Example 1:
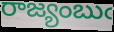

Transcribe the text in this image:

రాజ్యంబుఁ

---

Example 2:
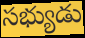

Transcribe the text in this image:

సభ్యుడు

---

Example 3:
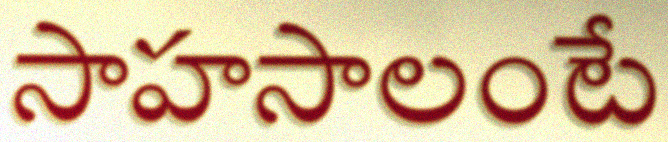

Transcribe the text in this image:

సాహసాలంటే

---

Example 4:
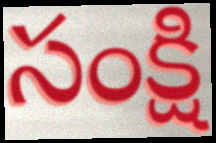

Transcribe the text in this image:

సంక్షి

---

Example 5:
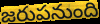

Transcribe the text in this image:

జరుపనుంది